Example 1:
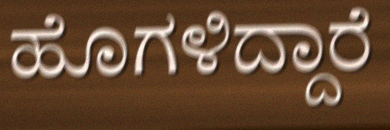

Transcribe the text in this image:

ಹೊಗಳಿದ್ದಾರೆ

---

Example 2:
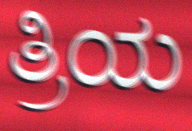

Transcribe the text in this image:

ತ್ರಿಯ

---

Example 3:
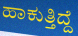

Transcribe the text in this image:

ಹಾಕುತ್ತಿದ್ದೆ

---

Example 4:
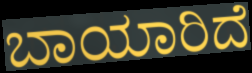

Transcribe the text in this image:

ಬಾಯಾರಿದೆ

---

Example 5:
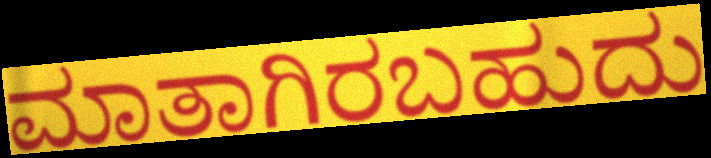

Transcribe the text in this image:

ಮಾತಾಗಿರಬಹುದು